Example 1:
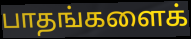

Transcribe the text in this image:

பாதங்களைக்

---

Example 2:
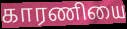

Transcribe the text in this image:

காரணியை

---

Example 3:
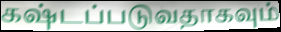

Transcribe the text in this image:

கஷ்டப்படுவதாகவும்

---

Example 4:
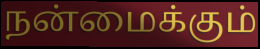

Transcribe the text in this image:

நன்மைக்கும்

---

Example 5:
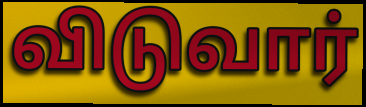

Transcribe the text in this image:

விடுவார்